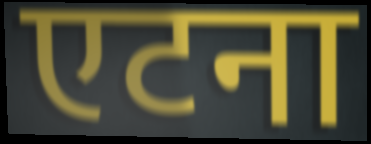
एटना